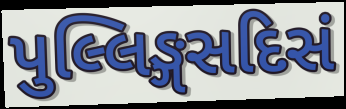
પુલ્લિઙ્ગસદિસં